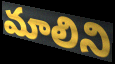
మాలిని